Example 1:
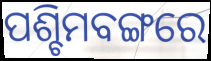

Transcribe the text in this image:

ପଶ୍ଚିମବଙ୍ଗରେ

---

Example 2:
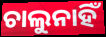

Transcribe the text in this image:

ଚାଲୁନାହିଁ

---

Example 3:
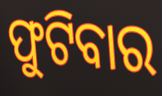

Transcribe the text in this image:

ଫୁଟିବାର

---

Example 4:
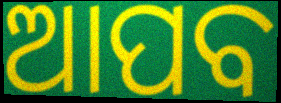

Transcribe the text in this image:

ଆପବ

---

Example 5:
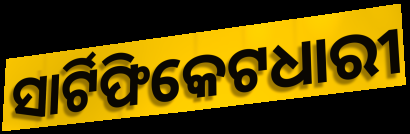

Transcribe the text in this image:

ସାର୍ଟିଫିକେଟଧାରୀ